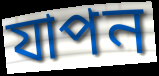
যাপন